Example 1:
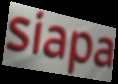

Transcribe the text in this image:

siapa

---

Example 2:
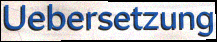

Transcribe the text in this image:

Uebersetzung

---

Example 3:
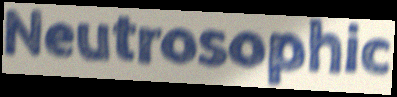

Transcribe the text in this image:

Neutrosophic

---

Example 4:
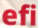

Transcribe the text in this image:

efi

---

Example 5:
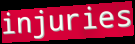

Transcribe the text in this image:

injuries